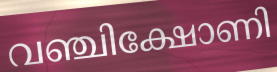
വഞ്ചിക്ഷോണി